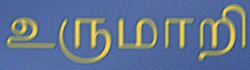
உருமாறி